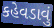
કહેવડાવું